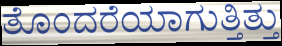
ತೊಂದರೆಯಾಗುತ್ತಿತ್ತು